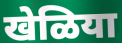
खेळिया